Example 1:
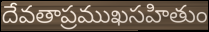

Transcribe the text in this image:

దేవతాప్రముఖసహితుం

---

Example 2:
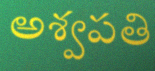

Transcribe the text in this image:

అశ్వపతి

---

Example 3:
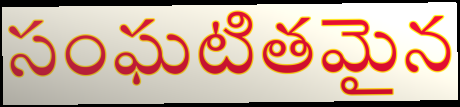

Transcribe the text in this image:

సంఘటితమైన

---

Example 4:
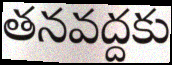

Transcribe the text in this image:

తనవద్దకు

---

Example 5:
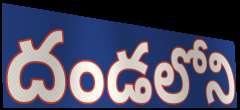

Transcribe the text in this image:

దండలోని